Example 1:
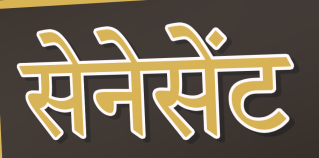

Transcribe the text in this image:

सेनेसेंट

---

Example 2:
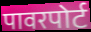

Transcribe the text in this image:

पावरपोर्ट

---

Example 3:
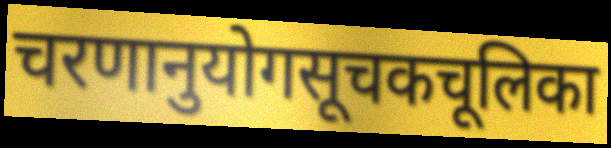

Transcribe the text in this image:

चरणानुयोगसूचकचूलिका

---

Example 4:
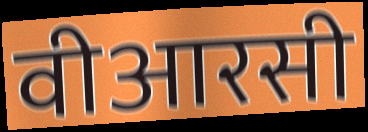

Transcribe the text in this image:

वीआरसी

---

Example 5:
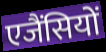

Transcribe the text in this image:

एजैंसियों